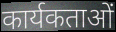
कार्यकताओं